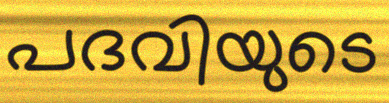
പദവിയുടെ